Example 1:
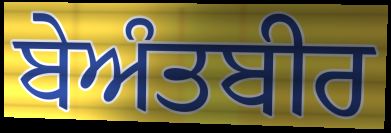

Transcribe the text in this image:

ਬੇਅੰਤਬੀਰ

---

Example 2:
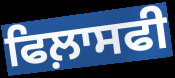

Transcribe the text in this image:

ਫਿਲ਼ਾਸਫੀ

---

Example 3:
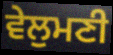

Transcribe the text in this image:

ਵੇਲੁਮਣੀ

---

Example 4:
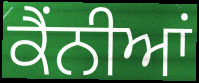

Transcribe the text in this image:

ਕੈਂਨੀਆਂ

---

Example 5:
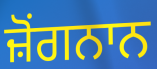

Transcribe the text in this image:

ਜ਼ੋਂਗਨਾਨ